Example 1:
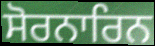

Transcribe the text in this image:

ਸੋਰਨਾਰਿਨ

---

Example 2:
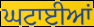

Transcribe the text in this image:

ਘਟਾਈਆਂ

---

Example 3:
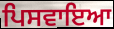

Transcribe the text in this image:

ਪਿਸਵਾਇਆ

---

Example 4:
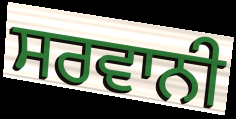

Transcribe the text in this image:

ਸਰਵਾਨੀ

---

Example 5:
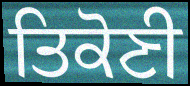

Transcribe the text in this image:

ਤਿਕੋਣੀ